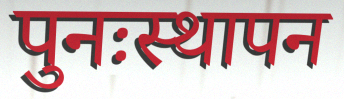
पुनःस्थापन